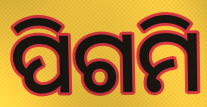
ପିଗମି